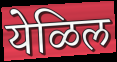
येळिल